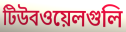
টিউবওয়েলগুলি